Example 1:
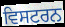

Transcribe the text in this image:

ਵਿਸਟਰਨ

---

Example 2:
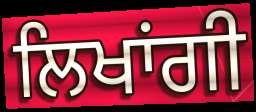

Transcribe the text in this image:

ਲਿਖਾਂਗੀ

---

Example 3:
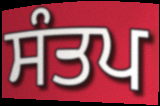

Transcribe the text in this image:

ਸੰਤਪ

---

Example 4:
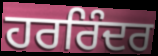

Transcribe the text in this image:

ਹਰਰਿੰਦਰ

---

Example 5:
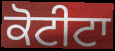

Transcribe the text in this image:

ਕੋਟੀਟਾ